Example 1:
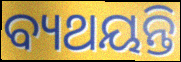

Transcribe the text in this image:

ବ୍ୟଥୟନ୍ତି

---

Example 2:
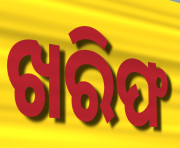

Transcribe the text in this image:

ଖରିଫ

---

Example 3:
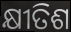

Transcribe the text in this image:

କ୍ଷୀତିଶ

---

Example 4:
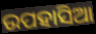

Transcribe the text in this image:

ଉପହାସିଆ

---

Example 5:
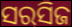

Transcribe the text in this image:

ସରସିଜ